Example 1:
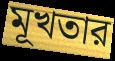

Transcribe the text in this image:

মূখতার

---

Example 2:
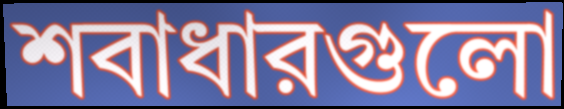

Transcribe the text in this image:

শবাধারগুলো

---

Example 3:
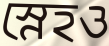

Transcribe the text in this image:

স্নেহও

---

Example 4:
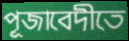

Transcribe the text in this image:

পূজাবেদীতে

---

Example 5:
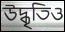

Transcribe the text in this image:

উদ্ধৃতিও